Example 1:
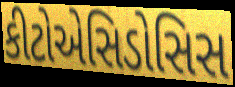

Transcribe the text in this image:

કીટોએસિડોસિસ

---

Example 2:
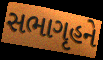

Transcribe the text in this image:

સભાગૃહને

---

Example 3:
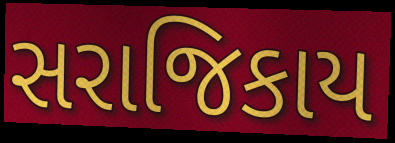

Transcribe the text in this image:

સરાજિકાય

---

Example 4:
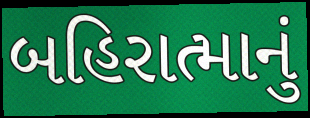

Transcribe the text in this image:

બહિરાત્માનું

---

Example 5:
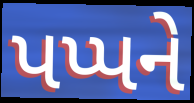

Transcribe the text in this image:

પપ્પને